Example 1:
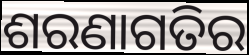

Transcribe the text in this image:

ଶରଣାଗତିର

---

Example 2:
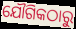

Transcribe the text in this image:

ଯୌଗିକଠାରୁ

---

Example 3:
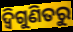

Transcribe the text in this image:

ଦ୍ୱିଗୁଣିତରୁ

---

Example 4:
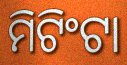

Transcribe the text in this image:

ମିଟିଂଟା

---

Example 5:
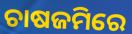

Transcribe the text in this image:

ଚାଷଜମିରେ